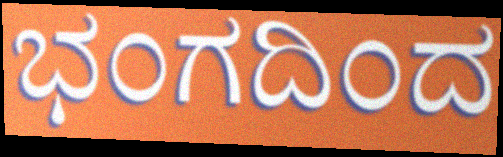
ಭಂಗದಿಂದ